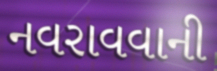
નવરાવવાની